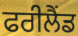
ਫਰੀਲੈਂਡ